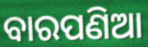
ବାରପଣିଆ